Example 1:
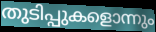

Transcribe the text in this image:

തുടിപ്പുകളൊന്നും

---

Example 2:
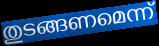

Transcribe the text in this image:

തുടങ്ങണമെന്ന്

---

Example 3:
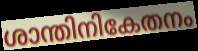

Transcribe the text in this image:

ശാന്തിനികേതനം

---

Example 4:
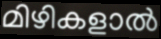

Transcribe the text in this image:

മിഴികളാൽ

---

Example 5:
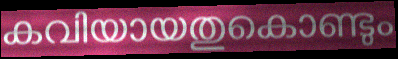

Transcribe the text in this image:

കവിയായതുകൊണ്ടും